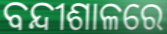
ବନ୍ଦୀଶାଳରେ